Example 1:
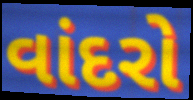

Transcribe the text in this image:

વાંદરો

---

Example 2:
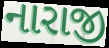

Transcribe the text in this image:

નારાજી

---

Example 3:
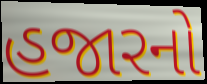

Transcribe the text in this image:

હજારનો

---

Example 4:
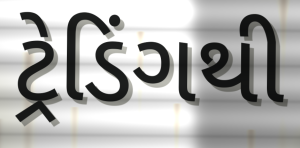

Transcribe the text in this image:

ટ્રેડિંગથી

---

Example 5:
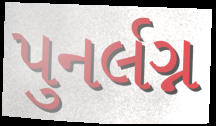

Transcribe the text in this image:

પુનર્લગ્ન